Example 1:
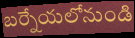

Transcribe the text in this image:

బర్నేయలోనుండి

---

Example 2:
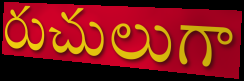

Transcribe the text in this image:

రుచులుగా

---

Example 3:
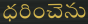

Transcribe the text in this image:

ధరించెను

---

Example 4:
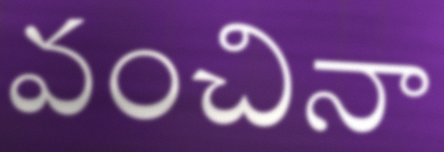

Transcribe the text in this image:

వంచినా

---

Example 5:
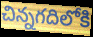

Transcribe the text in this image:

చిన్నగదిలోకి